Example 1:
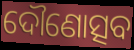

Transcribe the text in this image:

ଦୌଣୋତ୍ସବ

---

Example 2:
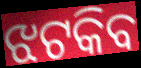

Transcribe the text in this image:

ଝଟକିବ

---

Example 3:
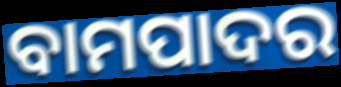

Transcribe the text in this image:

ବାମପାଦର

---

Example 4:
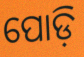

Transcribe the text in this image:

ପୋଡ଼ି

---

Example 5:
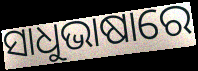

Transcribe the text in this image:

ସାଧୁଭାଷାରେ